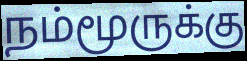
நம்மூருக்கு